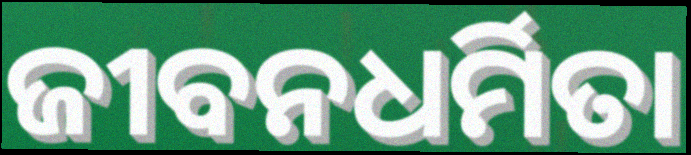
ଜୀବନଧର୍ମିତା